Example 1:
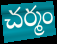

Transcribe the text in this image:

చర్మం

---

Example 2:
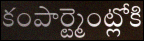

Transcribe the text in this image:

కంపార్ట్మెంట్లోకి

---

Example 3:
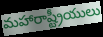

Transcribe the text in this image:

మహారాష్ట్రీయులు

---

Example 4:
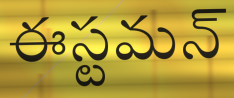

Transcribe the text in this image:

ఈస్టమన్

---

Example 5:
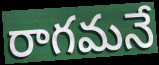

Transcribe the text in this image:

రాగమనే